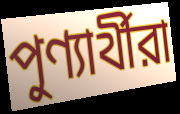
পুণ্যার্থীরা